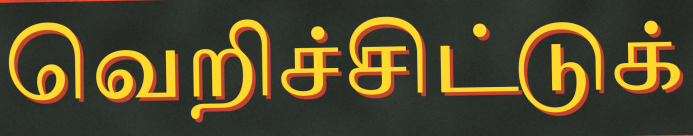
வெறிச்சிட்டுக்